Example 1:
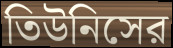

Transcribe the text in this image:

তিউনিসের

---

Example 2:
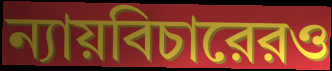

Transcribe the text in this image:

ন্যায়বিচারেরও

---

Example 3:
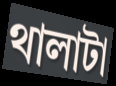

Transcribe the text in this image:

থালাটা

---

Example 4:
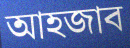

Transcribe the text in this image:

আহজাব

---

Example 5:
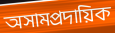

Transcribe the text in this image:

অসামপ্রদায়িক